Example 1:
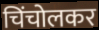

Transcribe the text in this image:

चिंचोलकर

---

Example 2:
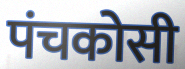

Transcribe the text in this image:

पंचकोसी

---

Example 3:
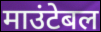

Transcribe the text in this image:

माउंटेबल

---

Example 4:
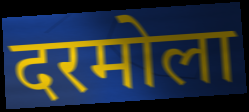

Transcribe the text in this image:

दरमोला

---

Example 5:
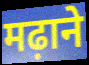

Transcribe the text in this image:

मढ़ाने